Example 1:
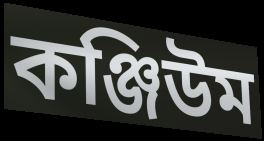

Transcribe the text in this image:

কঞ্জিউম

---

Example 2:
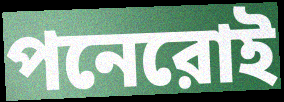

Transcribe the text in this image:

পনেরোই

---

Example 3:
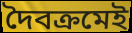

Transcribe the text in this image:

দৈবক্রমেই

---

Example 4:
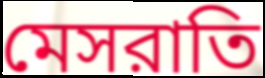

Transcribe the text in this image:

মেসরাতি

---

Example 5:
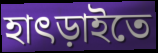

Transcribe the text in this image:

হাৎড়াইতে